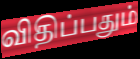
விதிப்பதும்